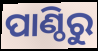
ପାଣ୍ଠିରୁ